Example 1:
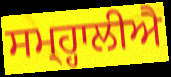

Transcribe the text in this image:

ਸਮ੍ਹ੍ਹਾਲੀਐ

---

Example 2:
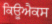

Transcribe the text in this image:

ਕਿਊਐਕਸ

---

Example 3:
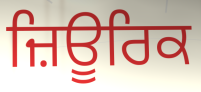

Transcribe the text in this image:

ਜ਼ਿਊਰਿਕ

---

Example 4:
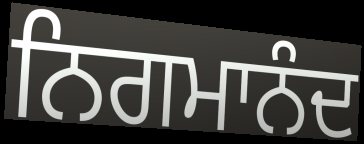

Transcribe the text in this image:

ਨਿਗਮਾਨੰਦ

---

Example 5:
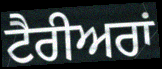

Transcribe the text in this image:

ਟੈਰੀਅਰਾਂ